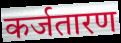
कर्जतारण